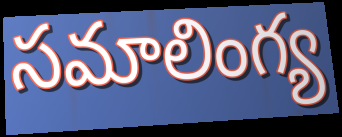
సమాలింగ్య